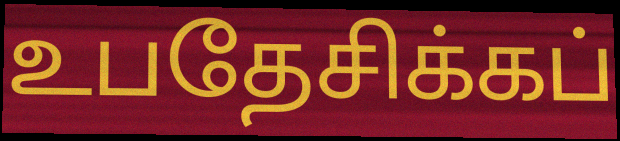
உபதேசிக்கப்